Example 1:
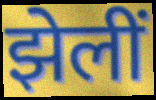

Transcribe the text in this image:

झेलीं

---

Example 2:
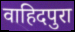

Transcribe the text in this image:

वाहिदपुरा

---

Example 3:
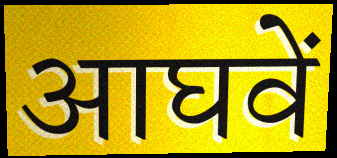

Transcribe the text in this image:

आघवें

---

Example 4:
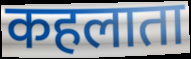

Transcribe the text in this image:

कहलाता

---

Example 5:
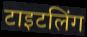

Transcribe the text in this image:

टाइटलिंग